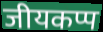
जीयकप्प